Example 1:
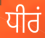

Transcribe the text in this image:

ਧੀਰਂ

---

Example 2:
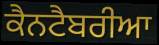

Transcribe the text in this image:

ਕੈਨਟੈਬਰੀਆ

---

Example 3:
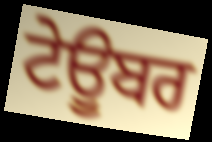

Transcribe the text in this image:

ਟੇਊਬਰ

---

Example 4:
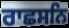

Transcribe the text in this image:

ਰਾਛਸਨਿ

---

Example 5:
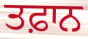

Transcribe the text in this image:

ਤਫ਼ਾਨ